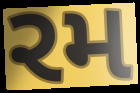
રમ